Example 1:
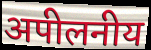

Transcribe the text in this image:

अपीलनीय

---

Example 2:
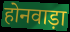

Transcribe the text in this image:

होनवाड़ा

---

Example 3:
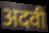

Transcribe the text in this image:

अदवी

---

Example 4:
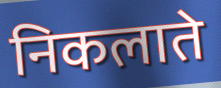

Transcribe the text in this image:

निकलाते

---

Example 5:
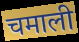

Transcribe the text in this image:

चमाली